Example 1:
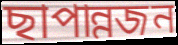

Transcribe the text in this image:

ছাপান্নজন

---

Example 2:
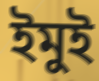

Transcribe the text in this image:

ইমুই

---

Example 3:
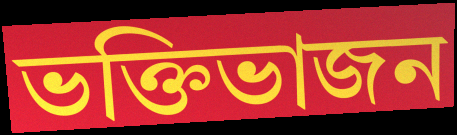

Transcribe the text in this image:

ভক্তিভাজন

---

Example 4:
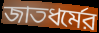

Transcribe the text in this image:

জাতধর্মের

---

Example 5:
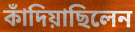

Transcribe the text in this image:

কাঁদিয়াছিলেন